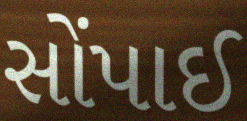
સોંપાઈ